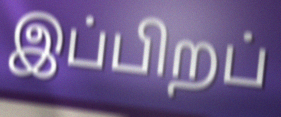
இப்பிறப்